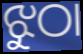
ଝୁଠା